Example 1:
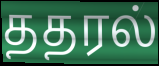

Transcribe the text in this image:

ததரல்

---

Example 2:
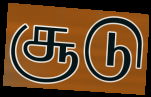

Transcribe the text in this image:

சூடு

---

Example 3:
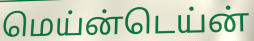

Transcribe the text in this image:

மெய்ன்டெய்ன்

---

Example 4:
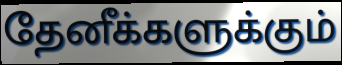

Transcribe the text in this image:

தேனீக்களுக்கும்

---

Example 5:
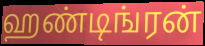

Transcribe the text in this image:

ஹண்டிங்ரன்